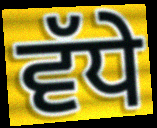
ਵੱਧੇ